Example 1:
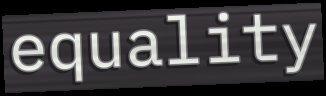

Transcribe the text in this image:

equality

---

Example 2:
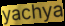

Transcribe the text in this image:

yachya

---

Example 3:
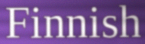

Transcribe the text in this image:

Finnish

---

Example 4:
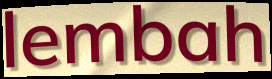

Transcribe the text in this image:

lembah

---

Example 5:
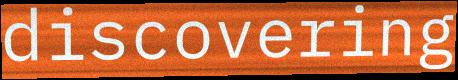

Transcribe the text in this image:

discovering